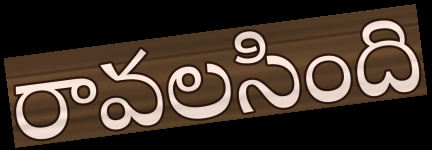
రావలసింది